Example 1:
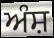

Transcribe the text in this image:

ਅੰਸ਼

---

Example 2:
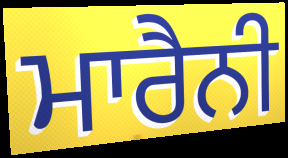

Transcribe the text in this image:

ਮਾਰੈਨੀ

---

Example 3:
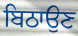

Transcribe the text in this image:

ਬਿਠਾਉਣ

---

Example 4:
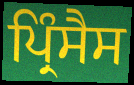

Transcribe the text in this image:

ਪ੍ਰਿੰਸੈਸ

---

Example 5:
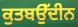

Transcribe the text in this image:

ਕੁਤਬਉੱਦੀਨ